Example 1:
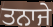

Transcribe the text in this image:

ਤਨਾਜੇ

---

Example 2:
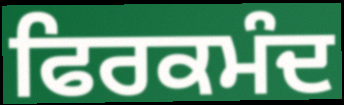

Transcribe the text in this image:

ਫਿਰਕਮੰਦ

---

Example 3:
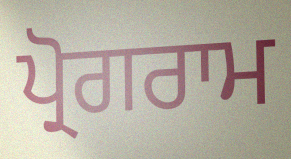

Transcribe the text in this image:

ਪ੍ਰ੍ਰੋਗਰਾਮ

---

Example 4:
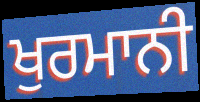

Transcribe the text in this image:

ਖੁਰਮਾਨੀ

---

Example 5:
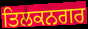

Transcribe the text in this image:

ਤਿਲਕਨਗਰ